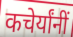
कचेर्यांनीं